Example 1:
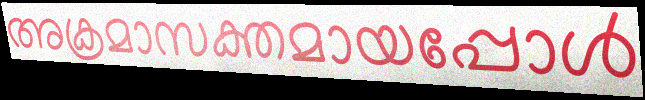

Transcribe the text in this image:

അക്രമാസക്തമായപ്പോൾ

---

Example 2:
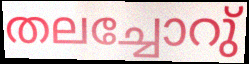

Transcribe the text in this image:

തലച്ചോറു്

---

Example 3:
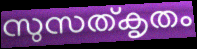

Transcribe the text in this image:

സുസത്കൃതം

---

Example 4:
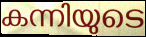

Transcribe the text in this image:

കന്നിയുടെ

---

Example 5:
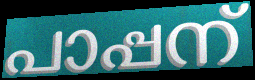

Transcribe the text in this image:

പാപ്പന്